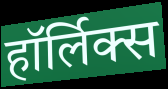
हॉर्लिक्‍स